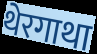
थेरगाथा